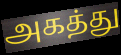
அகத்து